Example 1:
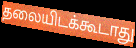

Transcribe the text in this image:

தலையிடக்கூடாது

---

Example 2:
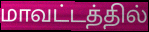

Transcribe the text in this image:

மாவட்டத்தில்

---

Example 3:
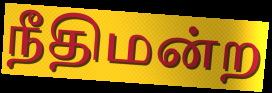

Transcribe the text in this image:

நீதிமன்ற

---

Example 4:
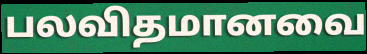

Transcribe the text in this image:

பலவிதமானவை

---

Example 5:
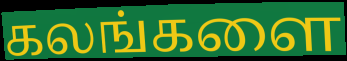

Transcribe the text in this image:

கலங்களை